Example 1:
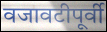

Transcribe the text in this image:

वजावटीपूर्वी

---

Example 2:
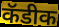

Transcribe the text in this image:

कॅडीक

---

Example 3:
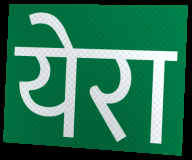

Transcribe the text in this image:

येरा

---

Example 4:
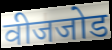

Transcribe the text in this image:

वीजजोड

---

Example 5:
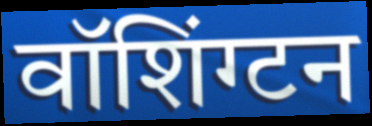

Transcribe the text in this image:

वॉशिंग्टन